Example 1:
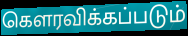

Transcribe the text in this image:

கௌரவிக்கப்படும்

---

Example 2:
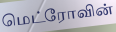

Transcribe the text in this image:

மெட்ரோவின்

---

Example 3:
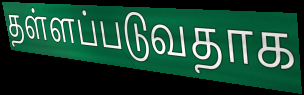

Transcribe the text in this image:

தள்ளப்படுவதாக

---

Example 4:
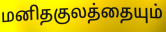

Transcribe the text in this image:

மனிதகுலத்தையும்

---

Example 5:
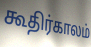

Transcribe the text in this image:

கூதிர்காலம்